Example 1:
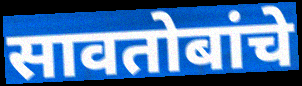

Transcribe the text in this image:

सावतोबांचे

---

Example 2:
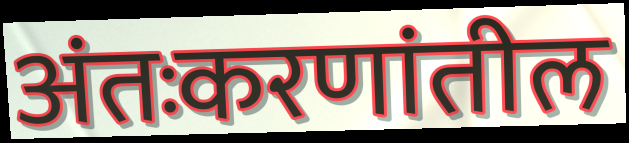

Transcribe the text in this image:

अंतःकरणांतील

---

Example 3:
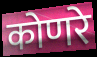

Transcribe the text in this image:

कोणरे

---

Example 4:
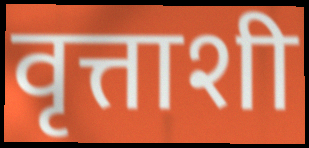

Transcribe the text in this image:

वृत्ताशी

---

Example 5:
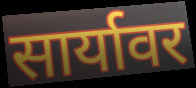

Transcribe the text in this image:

सार्यावर